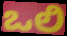
ಒಲಿ